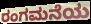
ರಂಗಮನೆಯ